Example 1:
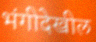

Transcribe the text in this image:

भंगीदेखील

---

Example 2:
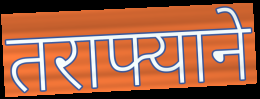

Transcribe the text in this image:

तराफ्याने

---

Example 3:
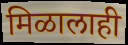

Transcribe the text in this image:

मिळालाही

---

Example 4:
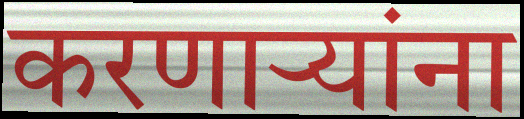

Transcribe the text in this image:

करणार्‍यांना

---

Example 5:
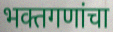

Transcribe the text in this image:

भक्तगणांचा